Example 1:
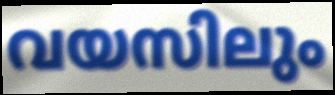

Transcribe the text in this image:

വയസിലും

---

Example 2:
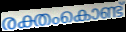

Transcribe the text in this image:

രക്തംകൊണ്ട്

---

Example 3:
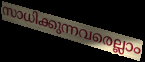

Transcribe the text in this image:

സാധിക്കുന്നവരെല്ലാം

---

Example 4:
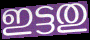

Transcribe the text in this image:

ഇട്ടതു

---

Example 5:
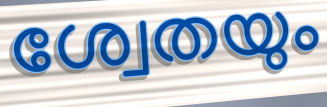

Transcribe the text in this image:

ശ്വേതയും